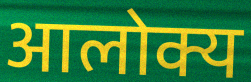
आलोक्य